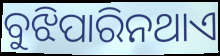
ବୁଝିପାରିନଥାଏ